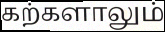
கற்களாலும்